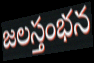
జలస్తంభన